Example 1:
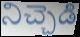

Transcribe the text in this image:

నిచ్చెడి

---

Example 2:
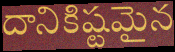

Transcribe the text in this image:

దానికిష్టమైన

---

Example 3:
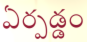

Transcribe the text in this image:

ఏర్పడ్డం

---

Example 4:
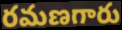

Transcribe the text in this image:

రమణగారు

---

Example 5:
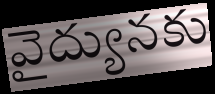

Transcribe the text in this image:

వైద్యునకు